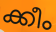
ക്കീം